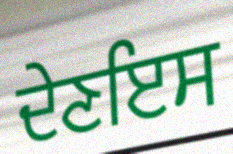
ਦੇਣਇਸ